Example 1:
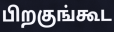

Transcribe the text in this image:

பிறகுங்கூட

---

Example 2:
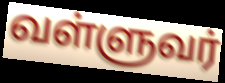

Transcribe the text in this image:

வள்ளுவர்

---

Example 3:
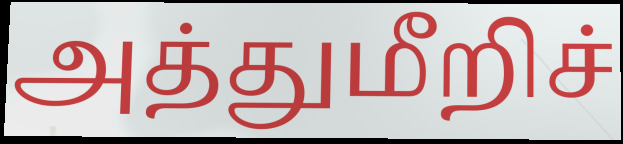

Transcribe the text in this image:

அத்துமீறிச்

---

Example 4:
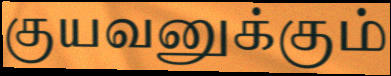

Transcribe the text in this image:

குயவனுக்கும்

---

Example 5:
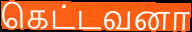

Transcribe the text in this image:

கெட்டவனா